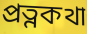
প্রত্নকথা